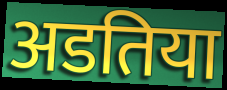
अडतिया